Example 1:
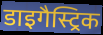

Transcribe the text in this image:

डाइगैस्ट्रिक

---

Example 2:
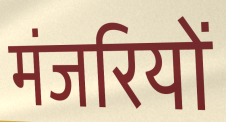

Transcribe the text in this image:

मंजरियों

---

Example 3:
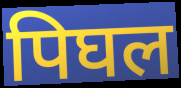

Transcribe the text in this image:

पिघल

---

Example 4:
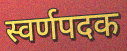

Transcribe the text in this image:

स्वर्णपदक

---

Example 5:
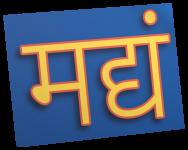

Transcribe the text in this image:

मद्यं